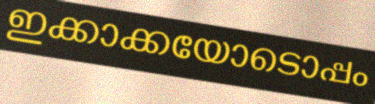
ഇക്കാക്കയോടൊപ്പം